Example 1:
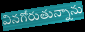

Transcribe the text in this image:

వినగోరుతున్నాను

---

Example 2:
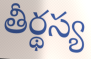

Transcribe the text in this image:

తీర్థస్య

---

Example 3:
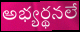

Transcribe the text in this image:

అభ్యర్థనలే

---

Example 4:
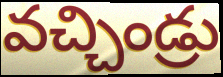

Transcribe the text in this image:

వచ్చిండ్రు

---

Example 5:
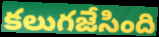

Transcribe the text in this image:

కలుగజేసింది